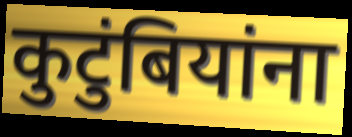
कुटुंबियांना